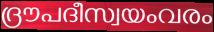
ദ്രൗപദീസ്വയംവരം